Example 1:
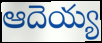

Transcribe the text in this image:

ఆదెయ్య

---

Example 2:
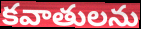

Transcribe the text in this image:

కవాతులను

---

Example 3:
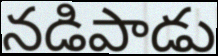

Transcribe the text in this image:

నడిపాడు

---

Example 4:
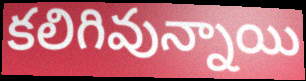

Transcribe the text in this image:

కలిగివున్నాయి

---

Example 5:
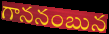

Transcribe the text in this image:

గాననంబున